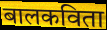
बालकविता